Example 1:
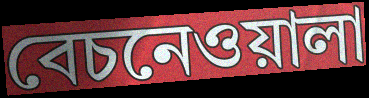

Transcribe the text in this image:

বেচনেওয়ালা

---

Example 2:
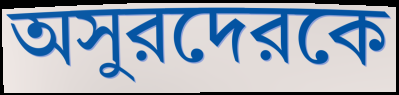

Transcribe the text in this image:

অসুরদেরকে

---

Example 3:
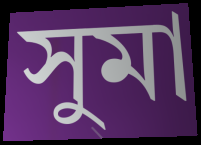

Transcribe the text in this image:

সুমা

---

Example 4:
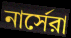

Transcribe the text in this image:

নার্সেরা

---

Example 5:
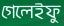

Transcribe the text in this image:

গেলেইফু